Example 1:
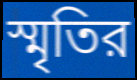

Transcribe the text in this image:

স্মৃতির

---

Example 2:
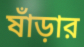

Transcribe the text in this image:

ষাঁড়ার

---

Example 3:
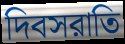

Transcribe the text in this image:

দিবসরাতি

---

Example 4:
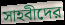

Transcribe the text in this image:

সাহবীদের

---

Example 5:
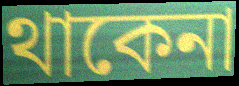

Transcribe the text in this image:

থাকেনা